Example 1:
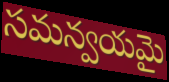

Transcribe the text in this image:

సమన్వయమై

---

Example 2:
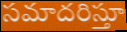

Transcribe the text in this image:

సమాదరిస్తూ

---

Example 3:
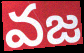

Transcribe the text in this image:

వజ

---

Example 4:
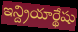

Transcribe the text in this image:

ఇన్ద్రియార్థేషు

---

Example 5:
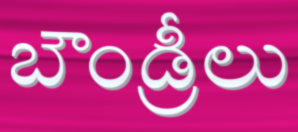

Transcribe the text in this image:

బౌండ్రీలు